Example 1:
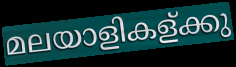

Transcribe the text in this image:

മലയാളികള്ക്കു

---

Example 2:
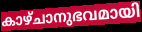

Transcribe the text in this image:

കാഴ്ചാനുഭവമായി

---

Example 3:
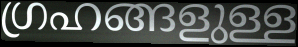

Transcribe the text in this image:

ഗ്രഹങ്ങളുള്ള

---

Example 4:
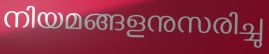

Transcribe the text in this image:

നിയമങ്ങളനുസരിച്ചു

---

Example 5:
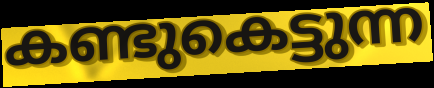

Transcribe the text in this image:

കണ്ടുകെട്ടുന്ന